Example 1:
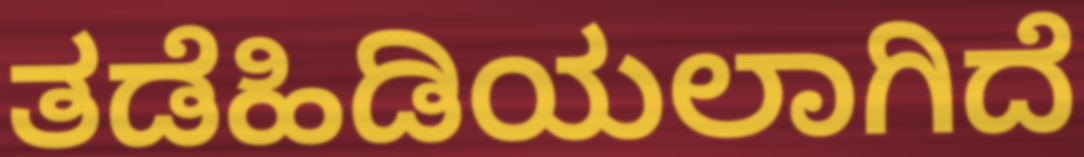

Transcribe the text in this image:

ತಡೆಹಿಡಿಯಲಾಗಿದೆ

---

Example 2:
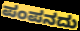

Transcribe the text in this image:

ಪಂಪನದು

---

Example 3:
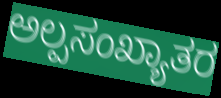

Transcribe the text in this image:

ಅಲ್ಪಸಂಖ್ಯಾತರ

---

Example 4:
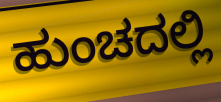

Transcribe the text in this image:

ಹುಂಚದಲ್ಲಿ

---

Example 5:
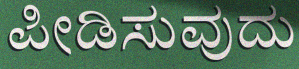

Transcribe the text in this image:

ಪೀಡಿಸುವುದು